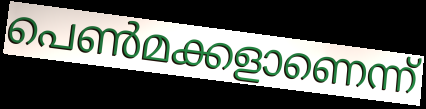
പെൺമക്കളാണെന്ന്